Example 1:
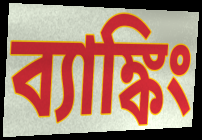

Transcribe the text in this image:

ব্যাঙ্কিং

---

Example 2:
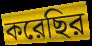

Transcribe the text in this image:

করেছির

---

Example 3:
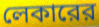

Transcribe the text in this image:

লেকারের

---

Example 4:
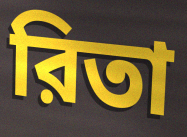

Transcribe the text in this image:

রিতা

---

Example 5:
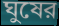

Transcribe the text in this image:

ঘুষের